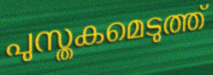
പുസ്തകമെടുത്ത്